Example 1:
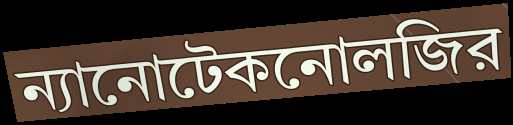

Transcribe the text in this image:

ন্যানোটেকনোলজির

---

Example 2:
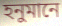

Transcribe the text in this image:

হনুমানে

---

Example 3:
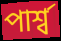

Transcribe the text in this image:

পার্শ্ব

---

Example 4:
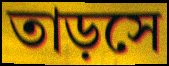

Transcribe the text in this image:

তাড়সে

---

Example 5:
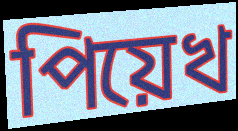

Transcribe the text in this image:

পিয়েখ